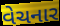
વેચનાર